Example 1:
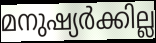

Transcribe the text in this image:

മനുഷ്യർക്കില്ല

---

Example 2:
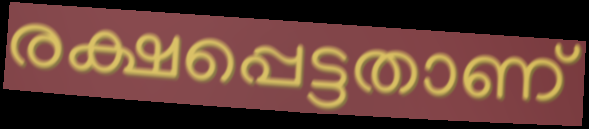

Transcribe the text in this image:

രക്ഷപ്പെട്ടതാണ്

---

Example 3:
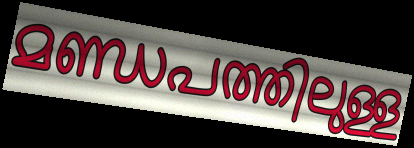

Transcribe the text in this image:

മണ്ഡപത്തിലുള്ള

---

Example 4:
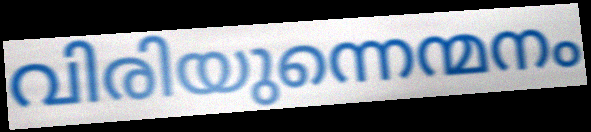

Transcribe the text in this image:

വിരിയുന്നെന്മനം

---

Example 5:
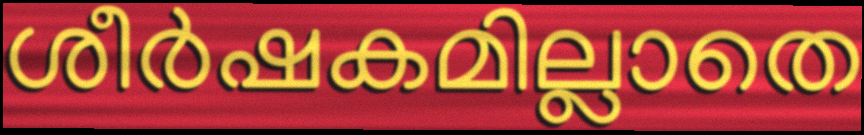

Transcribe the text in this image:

ശീർഷകമില്ലാതെ